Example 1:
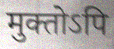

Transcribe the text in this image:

मुक्तोऽपि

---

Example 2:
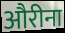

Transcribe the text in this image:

औरीना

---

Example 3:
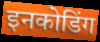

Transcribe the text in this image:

इनकोडिंग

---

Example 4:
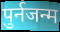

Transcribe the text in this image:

पुर्नजन्म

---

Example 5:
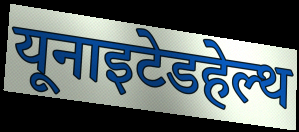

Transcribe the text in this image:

यूनाइटेडहेल्थ